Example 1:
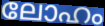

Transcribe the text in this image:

ലോഹം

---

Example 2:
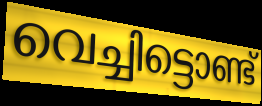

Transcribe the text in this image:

വെച്ചിട്ടൊണ്ട്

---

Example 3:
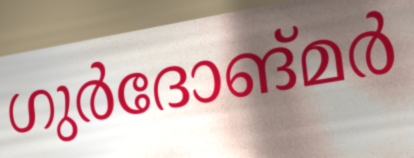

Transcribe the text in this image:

ഗുർദോങ്മർ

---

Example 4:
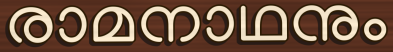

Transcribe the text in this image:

രാമനാഥനും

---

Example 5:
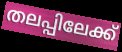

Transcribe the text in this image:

തലപ്പിലേക്ക്